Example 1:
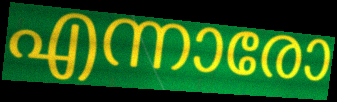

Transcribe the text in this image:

എന്നാരോ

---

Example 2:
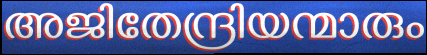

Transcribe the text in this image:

അജിതേന്ദ്രിയന്മാരും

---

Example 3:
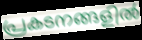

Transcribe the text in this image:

പ്രകടനങ്ങളിൽ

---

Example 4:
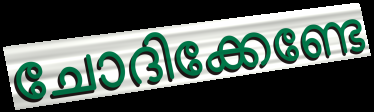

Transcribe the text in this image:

ചോദിക്കേണ്ടേ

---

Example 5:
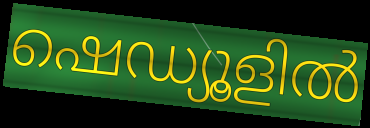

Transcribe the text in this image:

ഷെഡ്യൂളിൽ